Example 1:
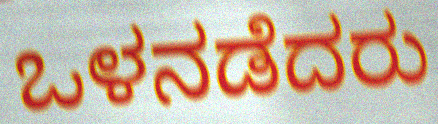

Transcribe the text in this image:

ಒಳನಡೆದರು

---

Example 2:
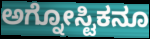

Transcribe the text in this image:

ಅಗ್ನೋಸ್ಟಿಕನೂ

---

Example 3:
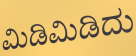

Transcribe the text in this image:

ಮಿಡಿಮಿಡಿದು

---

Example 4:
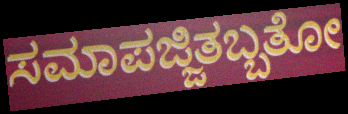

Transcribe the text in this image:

ಸಮಾಪಜ್ಜಿತಬ್ಬತೋ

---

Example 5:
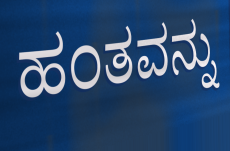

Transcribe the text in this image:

ಹಂತವನ್ನು